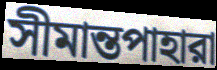
সীমান্তপাহারা